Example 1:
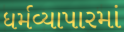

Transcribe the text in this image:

ધર્મવ્યાપારમાં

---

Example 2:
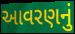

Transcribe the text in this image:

આવરણનું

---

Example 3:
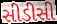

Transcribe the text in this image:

સીડીસી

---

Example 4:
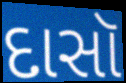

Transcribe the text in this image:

દાસૉ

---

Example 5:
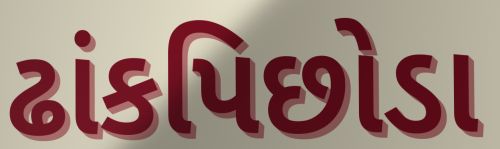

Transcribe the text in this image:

ઢાંકપિછોડા